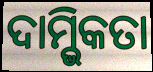
ଦାମ୍ଭିକତା